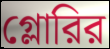
গ্লোরির